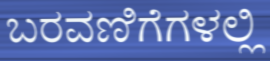
ಬರವಣಿಗೆಗಳಲ್ಲಿ